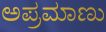
ಅಪ್ರಮಾಣು